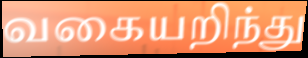
வகையறிந்து